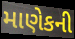
માણેકની